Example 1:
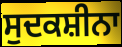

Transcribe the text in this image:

ਸੁਦਕਸ਼ੀਨਾ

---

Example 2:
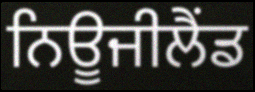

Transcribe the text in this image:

ਨਿਊਜੀਲੈਂਡ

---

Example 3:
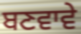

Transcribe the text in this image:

ਬਣਵਾਵੇ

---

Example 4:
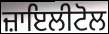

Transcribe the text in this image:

ਜ਼ਾਇਲੀਟੋਲ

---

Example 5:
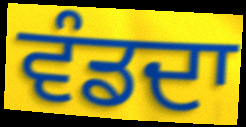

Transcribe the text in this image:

ਵੰਡਦਾ